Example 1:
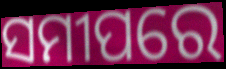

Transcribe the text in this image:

ସମୀପରେ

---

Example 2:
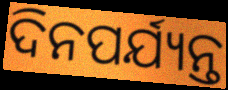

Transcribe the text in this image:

ଦିନପର୍ଯ୍ୟନ୍ତ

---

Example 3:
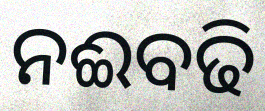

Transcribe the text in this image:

ନଈବଢି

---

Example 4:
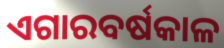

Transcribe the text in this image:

ଏଗାରବର୍ଷକାଳ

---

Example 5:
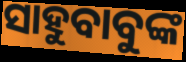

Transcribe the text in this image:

ସାହୁବାବୁଙ୍କ